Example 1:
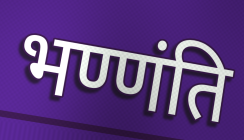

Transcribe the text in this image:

भण्णंति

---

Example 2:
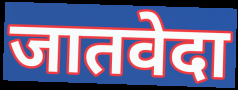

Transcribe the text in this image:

जातवेदा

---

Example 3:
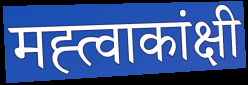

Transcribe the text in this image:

मह्त्वाकांक्षी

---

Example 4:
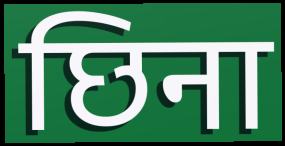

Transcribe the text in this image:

छिना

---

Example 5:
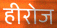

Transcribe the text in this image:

हीरोज